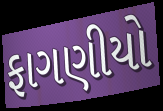
ફાગણીયો